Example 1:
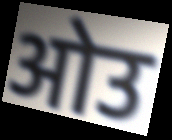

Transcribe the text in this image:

ओउ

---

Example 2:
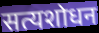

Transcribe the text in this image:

सत्यशोधन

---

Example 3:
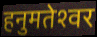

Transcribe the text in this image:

हनुमतेश्वर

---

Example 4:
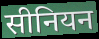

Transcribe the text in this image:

सीनियन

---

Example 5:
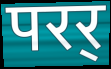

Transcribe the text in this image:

परर्